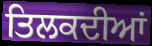
ਤਿਲਕਦੀਆਂ